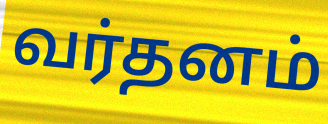
வர்தனம்